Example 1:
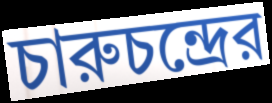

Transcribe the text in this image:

চারুচন্দ্রের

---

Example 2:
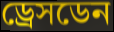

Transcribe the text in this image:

ড্রেসডেন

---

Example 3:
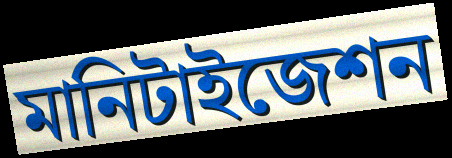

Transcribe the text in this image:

মানিটাইজেশন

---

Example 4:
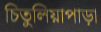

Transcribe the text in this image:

চিতুলিয়াপাড়া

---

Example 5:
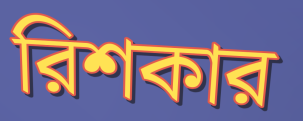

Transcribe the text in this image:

রিশকার